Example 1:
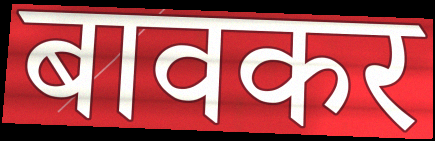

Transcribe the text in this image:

बावकर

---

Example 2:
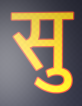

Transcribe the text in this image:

सु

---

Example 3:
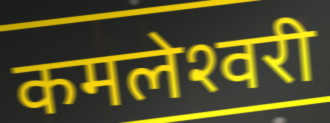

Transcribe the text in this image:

कमलेश्वरी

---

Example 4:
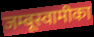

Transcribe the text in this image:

जम्बूस्वामीका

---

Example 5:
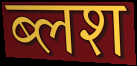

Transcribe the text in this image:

ब्लश